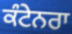
ਕੰਟੇਨਰਾ